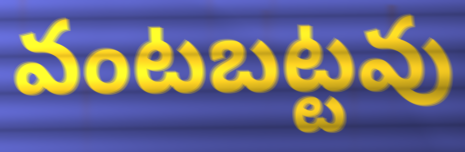
వంటబట్టవు